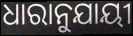
ଧାରାନୁଯାୟୀ